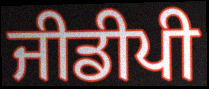
ਜੀਡੀਪੀ